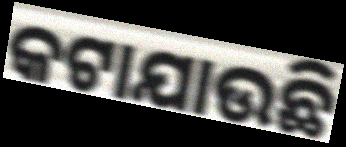
କଟାଯାଉଛି